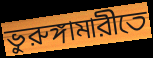
ভুরুঙ্গামারীতে